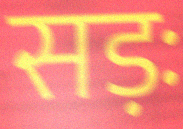
सड़ः